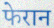
फेरान